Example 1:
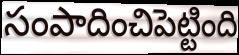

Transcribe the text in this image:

సంపాదించిపెట్టింది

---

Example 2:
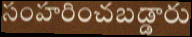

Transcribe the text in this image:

సంహరించబడ్డారు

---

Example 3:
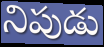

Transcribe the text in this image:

నిపుడు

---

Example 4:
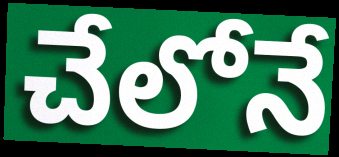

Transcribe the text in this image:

చేలోనే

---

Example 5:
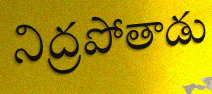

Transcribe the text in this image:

నిద్రపోతాడు